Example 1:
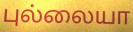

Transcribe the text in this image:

புல்லையா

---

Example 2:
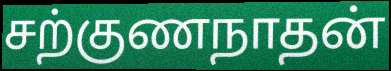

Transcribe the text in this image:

சற்குணநாதன்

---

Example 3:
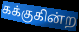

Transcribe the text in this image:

கக்குகின்ற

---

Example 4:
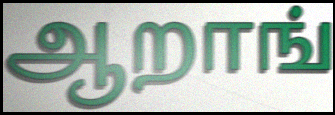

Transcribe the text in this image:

ஆறாங்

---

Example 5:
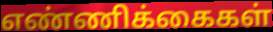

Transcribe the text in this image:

எண்ணிக்கைகள்